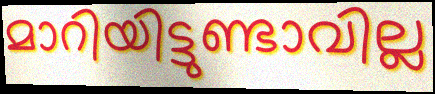
മാറിയിട്ടുണ്ടാവില്ല